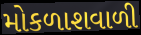
મોકળાશવાળી